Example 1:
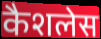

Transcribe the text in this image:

कैशलेस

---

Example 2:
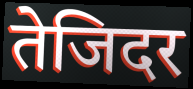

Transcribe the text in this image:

तेजिदर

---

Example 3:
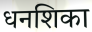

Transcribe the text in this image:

धनशिका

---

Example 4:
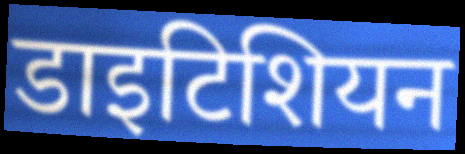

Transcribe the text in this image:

डाइटिशियन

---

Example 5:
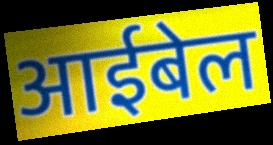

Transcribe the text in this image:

आईबेल